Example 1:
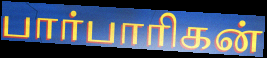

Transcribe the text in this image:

பார்பாரிகன்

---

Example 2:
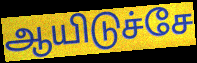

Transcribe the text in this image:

ஆயிடுச்சே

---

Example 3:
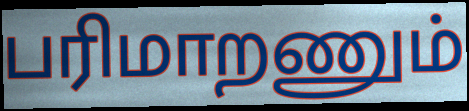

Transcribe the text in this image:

பரிமாறணும்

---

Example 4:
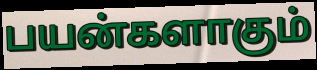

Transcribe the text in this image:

பயன்களாகும்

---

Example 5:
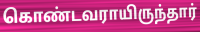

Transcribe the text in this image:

கொண்டவராயிருந்தார்